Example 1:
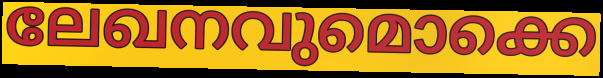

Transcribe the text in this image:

ലേഖനവുമൊക്കെ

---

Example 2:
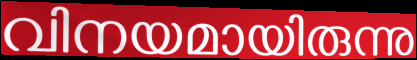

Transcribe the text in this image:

വിനയമായിരുന്നു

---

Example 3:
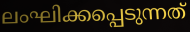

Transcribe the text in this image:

ലംഘിക്കപ്പെടുന്നത്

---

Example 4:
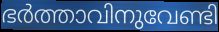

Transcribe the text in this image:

ഭർത്താവിനുവേണ്ടി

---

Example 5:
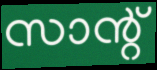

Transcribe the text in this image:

സാന്റ്